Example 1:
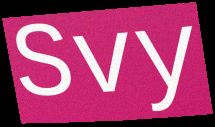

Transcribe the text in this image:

Svy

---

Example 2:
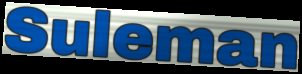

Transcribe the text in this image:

Suleman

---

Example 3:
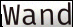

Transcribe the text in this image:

Wand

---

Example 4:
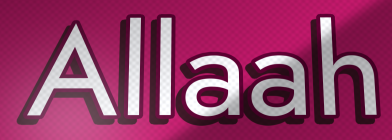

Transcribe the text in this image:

Allaah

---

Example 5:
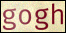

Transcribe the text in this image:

gogh